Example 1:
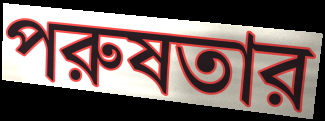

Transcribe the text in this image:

পরুষতার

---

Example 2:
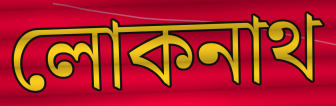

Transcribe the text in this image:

লোকনাথ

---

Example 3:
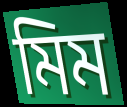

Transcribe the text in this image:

মিম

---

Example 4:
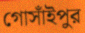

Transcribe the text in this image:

গোসাঁইপুর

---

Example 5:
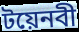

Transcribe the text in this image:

টয়েনবী